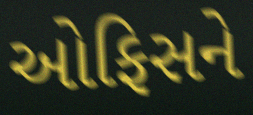
ઓફિસને